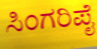
ಸಿಂಗರಿಪೈ